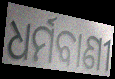
ଧର୍ମବାଣୀ